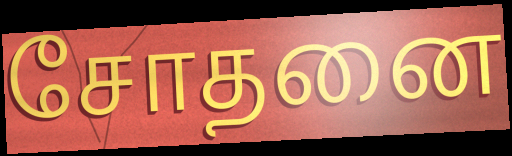
சோதனை